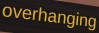
overhanging